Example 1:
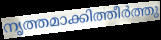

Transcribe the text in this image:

നൃത്തമാക്കിത്തീർത്തു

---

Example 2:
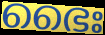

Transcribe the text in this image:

ഭൈഃ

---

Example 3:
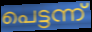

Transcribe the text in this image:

പെട്ടന്ന്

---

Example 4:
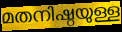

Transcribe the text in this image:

മതനിഷ്ഠയുള്ള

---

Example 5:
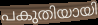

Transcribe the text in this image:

പകുതിയായി